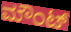
ಮೌಂಟ್